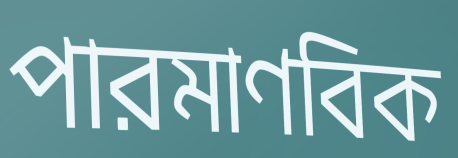
পারমাণবিক